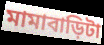
মামাবাড়িটা